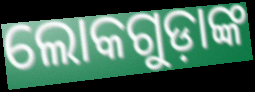
ଲୋକଗୁଡ଼ାଙ୍କ